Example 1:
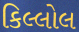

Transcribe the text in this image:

કિલ્લોલ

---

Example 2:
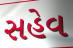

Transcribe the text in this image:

સહેવ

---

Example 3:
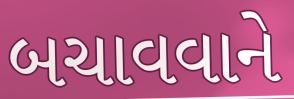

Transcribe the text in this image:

બચાવવાને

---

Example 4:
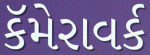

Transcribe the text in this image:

કૅમેરાવર્ક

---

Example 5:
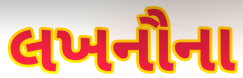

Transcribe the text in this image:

લખનૌના